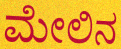
ಮೇಲಿನ